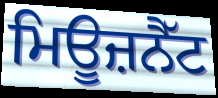
ਮਿਊਜ਼ਨੈੱਟ